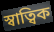
স্বাত্বিক